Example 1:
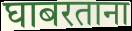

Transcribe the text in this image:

घाबरताना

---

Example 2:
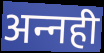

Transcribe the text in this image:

अन्नही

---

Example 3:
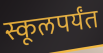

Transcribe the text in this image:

स्कूलपर्यंत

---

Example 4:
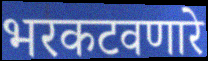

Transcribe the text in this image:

भरकटवणारे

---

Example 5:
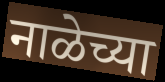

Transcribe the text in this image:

नाळेच्या